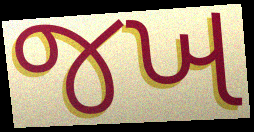
જખ